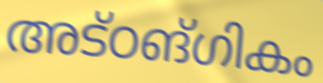
അട്ഠങ്ഗികം